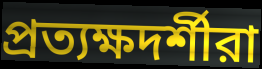
প্রত্যক্ষদর্শীরা